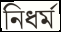
নিধর্ম